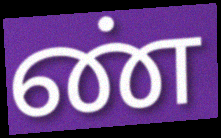
ண்